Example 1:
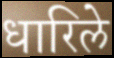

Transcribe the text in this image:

धारिले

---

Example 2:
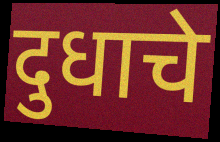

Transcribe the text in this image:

दुधाचे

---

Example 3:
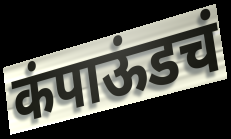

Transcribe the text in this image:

कंपाऊंडचं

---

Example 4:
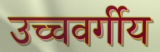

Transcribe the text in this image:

उच्चवर्गीय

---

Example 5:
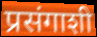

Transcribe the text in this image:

प्रसंगाशी